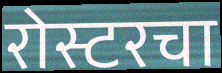
रोस्टरचा